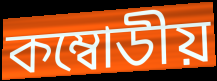
কম্বোডীয়